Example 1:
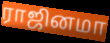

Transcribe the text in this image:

ராஜினமா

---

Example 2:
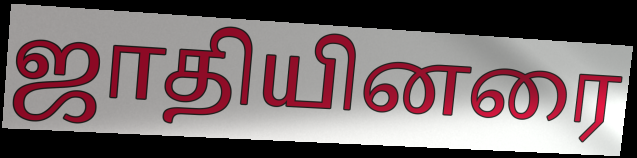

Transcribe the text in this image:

ஜாதியினரை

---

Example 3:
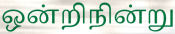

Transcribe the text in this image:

ஒன்றிநின்று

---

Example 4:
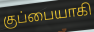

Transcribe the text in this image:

குப்பையாகி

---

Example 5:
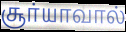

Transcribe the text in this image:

சூர்யாவால்